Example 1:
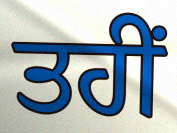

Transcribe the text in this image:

ਤਹੀਂ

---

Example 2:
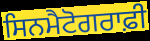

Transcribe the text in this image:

ਸਿਨਮੈਟੋਗਰਾਫ਼ੀ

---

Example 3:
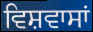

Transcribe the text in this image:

ਵਿਸ਼ਵਾਸਾਂ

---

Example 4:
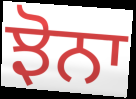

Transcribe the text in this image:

ਝੋਨਾ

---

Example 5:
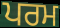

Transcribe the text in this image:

ਪਰਮ